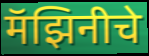
मॅझिनीचे